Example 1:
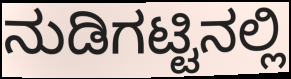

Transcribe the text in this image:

ನುಡಿಗಟ್ಟಿನಲ್ಲಿ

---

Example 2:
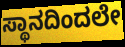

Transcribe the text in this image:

ಸ್ಥಾನದಿಂದಲೇ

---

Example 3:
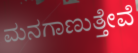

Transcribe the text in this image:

ಮನಗಾಣುತ್ತೇವೆ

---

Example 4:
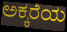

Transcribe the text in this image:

ಅಕ್ಕರೆಯ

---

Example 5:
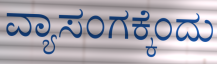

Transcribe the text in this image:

ವ್ಯಾಸಂಗಕ್ಕೆಂದು